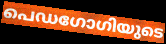
പെഡഗോഗിയുടെ